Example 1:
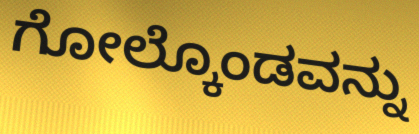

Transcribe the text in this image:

ಗೋಲ್ಕೊಂಡವನ್ನು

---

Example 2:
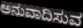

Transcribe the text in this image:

ಅನುವಾದಿಸುವ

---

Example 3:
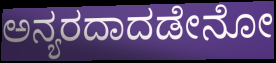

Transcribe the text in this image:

ಅನ್ಯರದಾದಡೇನೋ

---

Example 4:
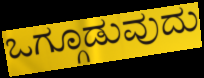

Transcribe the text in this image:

ಒಗ್ಗೂಡುವುದು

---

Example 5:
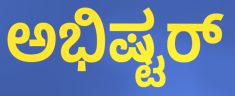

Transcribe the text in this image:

ಅಭಿಷ್ಟರ್